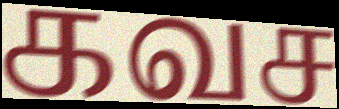
கவச